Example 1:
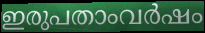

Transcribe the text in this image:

ഇരുപതാംവർഷം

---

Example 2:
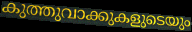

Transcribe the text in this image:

കുത്തുവാക്കുകളുടെയും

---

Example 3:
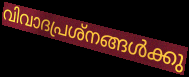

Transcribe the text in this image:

വിവാദപ്രശ്നങ്ങൾക്കു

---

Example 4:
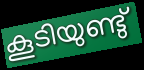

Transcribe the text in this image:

കൂടിയുണ്ടു്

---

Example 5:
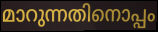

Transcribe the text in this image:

മാറുന്നതിനൊപ്പം